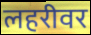
लहरीवर